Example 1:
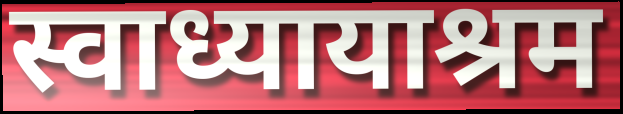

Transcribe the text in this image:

स्वाध्यायाश्रम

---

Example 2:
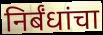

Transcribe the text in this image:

निर्बंधांचा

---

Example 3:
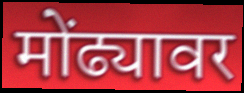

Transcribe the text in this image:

मोंढ्यावर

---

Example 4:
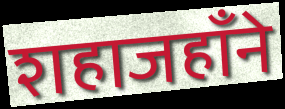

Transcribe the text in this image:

शहाजहाँने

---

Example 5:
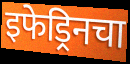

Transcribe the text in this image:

इफेड्रिनचा